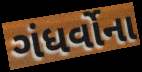
ગંધર્વોના